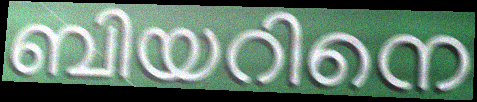
ബിയറിനെ